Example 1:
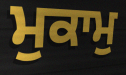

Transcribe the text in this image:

ਮੁਕਾਮੁ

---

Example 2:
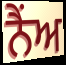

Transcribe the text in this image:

ਨੈਂਅ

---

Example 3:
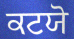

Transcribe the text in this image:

ਕਟਯੋ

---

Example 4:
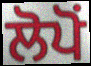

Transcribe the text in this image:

ਲੋਪੋਂ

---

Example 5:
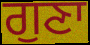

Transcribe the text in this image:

ਗੁਣਾ